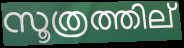
സൂത്രത്തില്